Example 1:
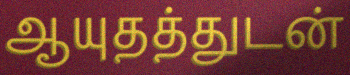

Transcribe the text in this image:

ஆயுதத்துடன்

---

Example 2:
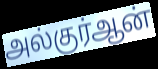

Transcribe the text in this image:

அல்குர்ஆன்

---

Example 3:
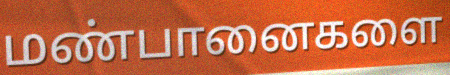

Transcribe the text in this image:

மண்பானைகளை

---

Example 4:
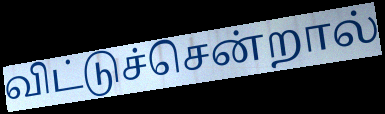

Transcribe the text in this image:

விட்டுச்சென்றால்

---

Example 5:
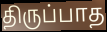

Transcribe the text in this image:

திருப்பாத